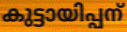
കുട്ടായിപ്പന്